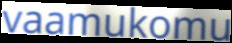
vaamukomu